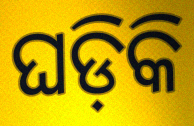
ଘଡ଼ିକି